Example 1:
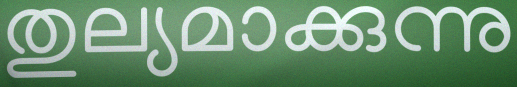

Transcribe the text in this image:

തുല്യമാക്കുന്നു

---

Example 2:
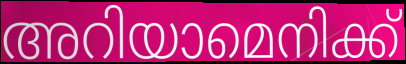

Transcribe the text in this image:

അറിയാമെനിക്ക്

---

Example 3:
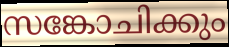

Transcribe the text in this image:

സങ്കോചിക്കും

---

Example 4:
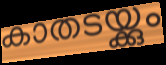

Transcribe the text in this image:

കാതടയ്ക്കും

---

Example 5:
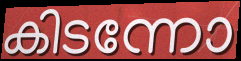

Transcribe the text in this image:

കിടന്നോ